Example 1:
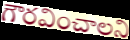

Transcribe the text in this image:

గౌరవించాలని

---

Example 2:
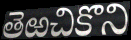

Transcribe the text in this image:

తెఱచికొని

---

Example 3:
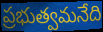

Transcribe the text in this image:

ప్రభుత్వమనేది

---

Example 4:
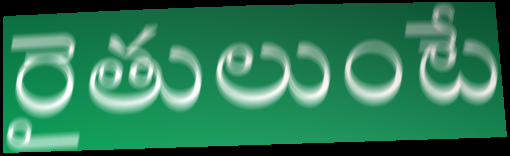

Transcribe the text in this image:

రైతులుంటే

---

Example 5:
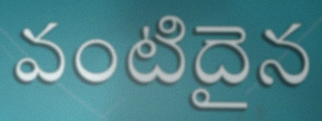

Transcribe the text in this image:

వంటిదైన